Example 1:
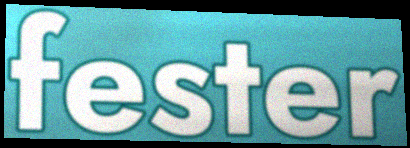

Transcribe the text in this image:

fester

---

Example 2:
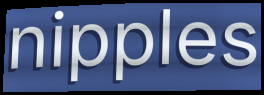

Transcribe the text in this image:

nipples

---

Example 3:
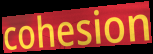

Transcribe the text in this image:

cohesion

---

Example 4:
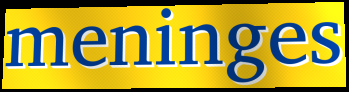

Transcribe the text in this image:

meninges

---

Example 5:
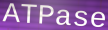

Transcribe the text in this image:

ATPase